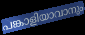
പങ്കാളിയാവാനും